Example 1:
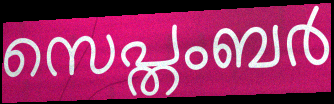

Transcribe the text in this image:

സെപ്തംബർ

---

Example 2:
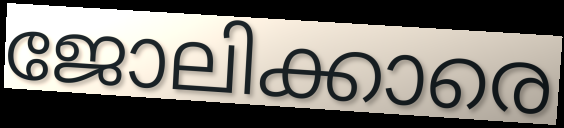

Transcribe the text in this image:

ജോലിക്കാരെ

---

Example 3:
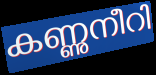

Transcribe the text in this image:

കണ്ണുനീറി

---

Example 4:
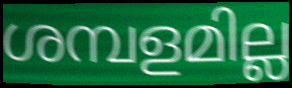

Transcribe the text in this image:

ശമ്പളമില്ല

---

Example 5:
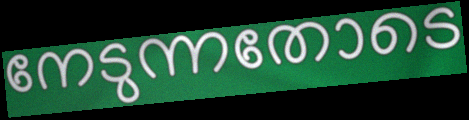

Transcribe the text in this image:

നേടുന്നതോടെ